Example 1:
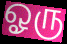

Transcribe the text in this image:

ஓரு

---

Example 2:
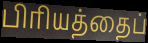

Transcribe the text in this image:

பிரியத்தைப்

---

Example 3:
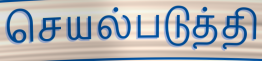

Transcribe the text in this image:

செயல்படுத்தி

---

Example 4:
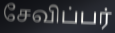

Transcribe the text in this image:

சேவிப்பர்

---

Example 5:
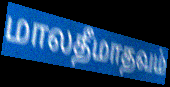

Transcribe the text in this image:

மாலதீமாதவம்